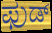
ಫುಡ್